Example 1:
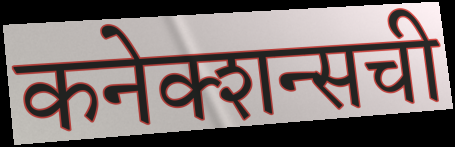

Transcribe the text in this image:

कनेक्शन्सची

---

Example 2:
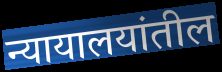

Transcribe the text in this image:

न्यायालयांतील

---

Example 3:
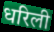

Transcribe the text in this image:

धरिली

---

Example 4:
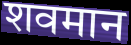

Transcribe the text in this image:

शवमान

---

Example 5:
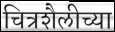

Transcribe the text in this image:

चित्रशैलीच्या